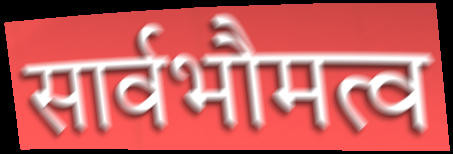
सार्वभौमत्व